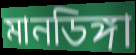
মানডিঙ্গা